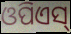
ଓପିଏସ୍